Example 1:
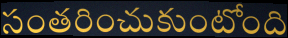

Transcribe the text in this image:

సంతరించుకుంటోంది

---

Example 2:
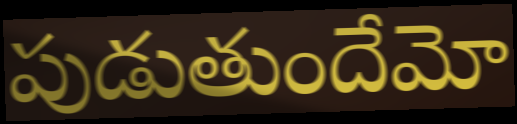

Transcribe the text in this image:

పుడుతుందేమో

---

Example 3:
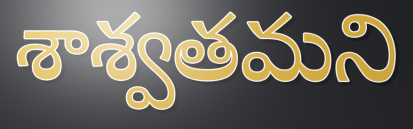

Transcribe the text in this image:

శాశ్వతమని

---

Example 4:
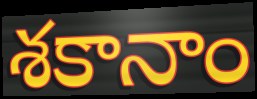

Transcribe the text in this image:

శకానాం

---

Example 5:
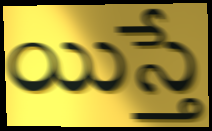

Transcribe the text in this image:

యిస్తే